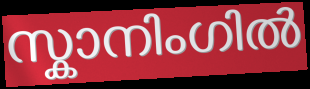
സ്കാനിംഗിൽ